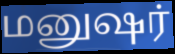
மனுஷர்